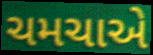
ચમચાએ